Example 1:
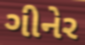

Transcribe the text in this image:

ગીનેર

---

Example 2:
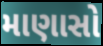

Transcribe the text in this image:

માણાસો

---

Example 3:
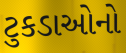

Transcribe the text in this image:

ટુકડાઓનો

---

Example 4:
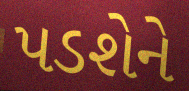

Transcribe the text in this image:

પડશેને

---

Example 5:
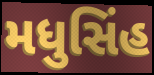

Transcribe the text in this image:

મધુસિંહ